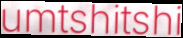
umtshitshi